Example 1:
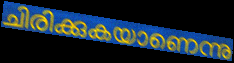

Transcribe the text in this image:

ചിരിക്കുകയാണെന്നു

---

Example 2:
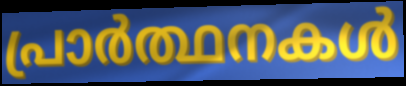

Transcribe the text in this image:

പ്രാർത്ഥനകൾ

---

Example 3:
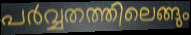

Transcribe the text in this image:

പർവ്വതത്തിലെങ്ങും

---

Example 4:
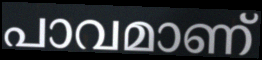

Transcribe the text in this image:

പാവമാണ്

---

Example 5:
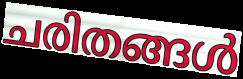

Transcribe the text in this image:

ചരിതങ്ങൾ